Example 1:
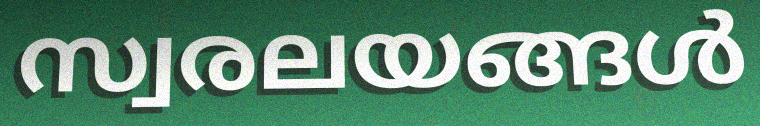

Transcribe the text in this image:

സ്വരലയങ്ങൾ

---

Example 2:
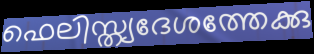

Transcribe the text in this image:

ഫെലിസ്ത്യദേശത്തേക്കു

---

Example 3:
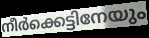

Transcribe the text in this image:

നീർക്കെട്ടിനേയും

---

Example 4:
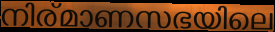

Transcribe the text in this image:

നിര്മാണസഭയിലെ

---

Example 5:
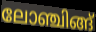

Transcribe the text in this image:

ലോഞ്ചിങ്ങ്